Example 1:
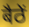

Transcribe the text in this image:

बैठें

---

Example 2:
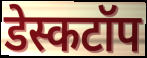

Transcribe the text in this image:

डेस्कटॉप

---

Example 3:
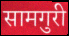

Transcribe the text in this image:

सामगुरी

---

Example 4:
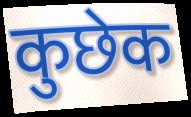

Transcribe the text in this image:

कुछेक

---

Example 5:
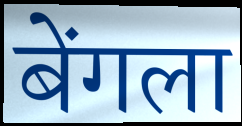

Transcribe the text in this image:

बेंगला